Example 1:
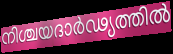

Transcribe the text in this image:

നിശ്ചയദാർഢ്യത്തിൽ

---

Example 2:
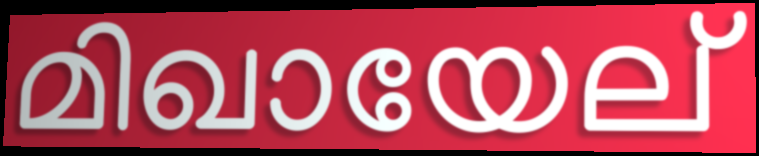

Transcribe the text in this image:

മിഖായേല്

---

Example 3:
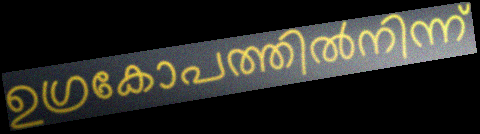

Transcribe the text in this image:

ഉഗ്രകോപത്തിൽനിന്ന്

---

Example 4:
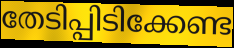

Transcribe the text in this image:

തേടിപ്പിടിക്കേണ്ട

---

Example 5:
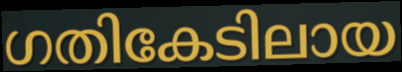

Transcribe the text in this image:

ഗതികേടിലായ